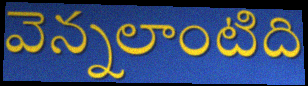
వెన్నలాంటిది